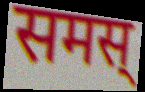
समस्